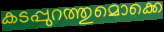
കടപ്പുറത്തുമൊക്കെ